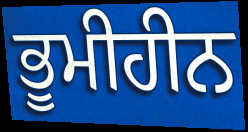
ਭੂਮੀਹੀਨ